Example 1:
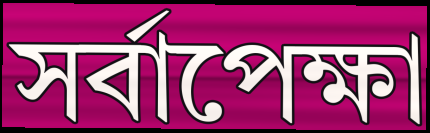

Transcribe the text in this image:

সৰ্বাপেক্ষা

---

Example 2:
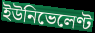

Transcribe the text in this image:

ইউনিভেলেণ্ট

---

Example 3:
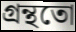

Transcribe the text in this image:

গ্ৰন্থতো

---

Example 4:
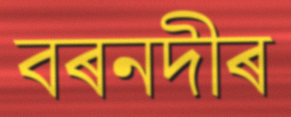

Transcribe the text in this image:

বৰনদীৰ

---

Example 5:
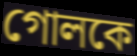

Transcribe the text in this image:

গোলকে